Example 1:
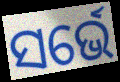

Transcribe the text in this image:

ସର୍ଭେ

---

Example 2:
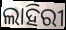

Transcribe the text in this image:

ଲାହିରୀ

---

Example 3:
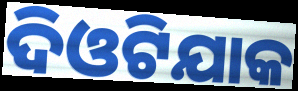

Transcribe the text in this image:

ଦିଓଟିଯାକ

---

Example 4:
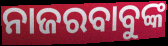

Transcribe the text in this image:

ନାଜରବାବୁଙ୍କ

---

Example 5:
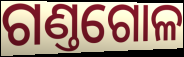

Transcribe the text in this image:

ଗଣ୍ତଗୋଳ